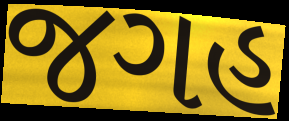
જગહ